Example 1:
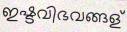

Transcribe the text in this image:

ഇഷ്ടവിഭവങ്ങള്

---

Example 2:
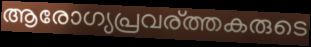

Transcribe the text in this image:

ആരോഗ്യപ്രവര്ത്തകരുടെ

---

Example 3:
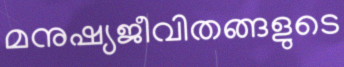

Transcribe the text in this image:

മനുഷ്യജീവിതങ്ങളുടെ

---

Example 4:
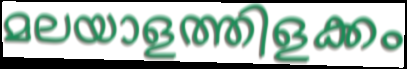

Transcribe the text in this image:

മലയാളത്തിളക്കം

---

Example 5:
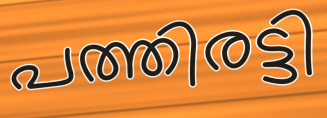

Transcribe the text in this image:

പത്തിരട്ടി